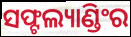
ସଫ୍ଟଲ୍ୟାଣ୍ଡିଂର